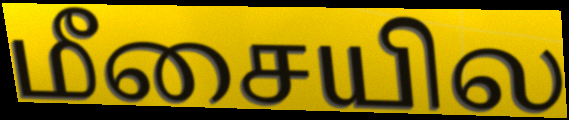
மீசையில